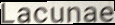
Lacunae